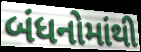
બંધનોમાંથી